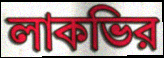
লাকভির